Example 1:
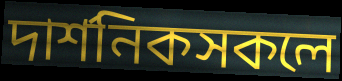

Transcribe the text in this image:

দাৰ্শনিকসকলে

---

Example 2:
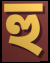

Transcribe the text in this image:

হু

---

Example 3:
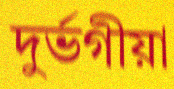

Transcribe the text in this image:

দুৰ্ভগীয়া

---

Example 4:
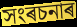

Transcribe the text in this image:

সংৰচনাৰ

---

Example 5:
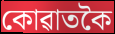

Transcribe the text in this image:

কোৱাতকৈ